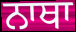
ਨਾਥਾ